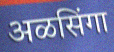
अळसिंगा